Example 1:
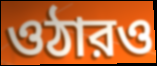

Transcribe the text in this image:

ওঠারও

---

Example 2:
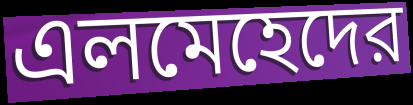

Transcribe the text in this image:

এলমেহেদের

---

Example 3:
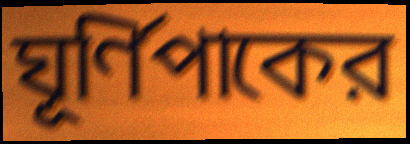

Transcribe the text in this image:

ঘূর্ণিপাকের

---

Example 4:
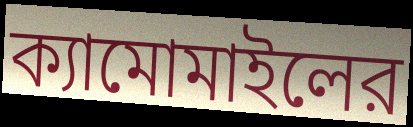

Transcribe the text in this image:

ক্যামোমাইলের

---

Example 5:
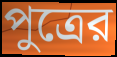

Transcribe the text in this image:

পুত্রের